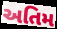
અતિમ